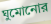
ঘুমোনোর